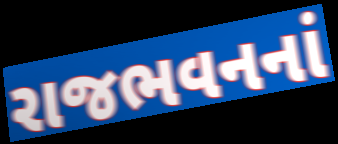
રાજભવનનાં